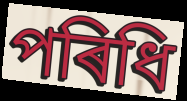
পৰিধি